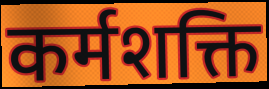
कर्मशक्ति